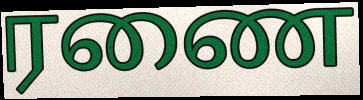
ரணை